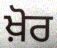
ਖ਼ੋਰ